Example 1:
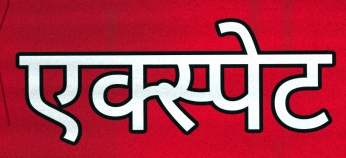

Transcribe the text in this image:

एक्स्पेट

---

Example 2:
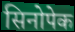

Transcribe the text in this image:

सिनोपेक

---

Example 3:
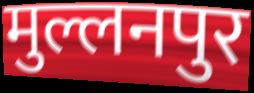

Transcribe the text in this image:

मुल्लनपुर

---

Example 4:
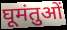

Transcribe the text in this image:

घूमंतुओं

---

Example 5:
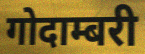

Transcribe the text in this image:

गोदाम्बरी